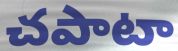
చపాటా